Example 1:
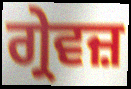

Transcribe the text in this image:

ਗ੍ਰੇਵਜ਼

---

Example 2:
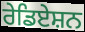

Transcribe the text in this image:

ਰੇਡਿਏਸ਼ਨ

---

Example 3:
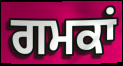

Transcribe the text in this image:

ਗਮਕਾਂ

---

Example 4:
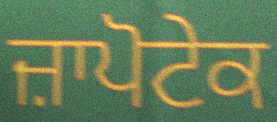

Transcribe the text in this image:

ਜ਼ਾਪੋਟੇਕ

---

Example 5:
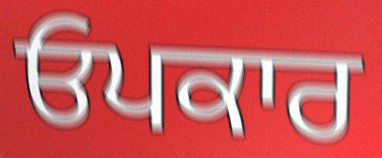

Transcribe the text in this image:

ਓਪਕਾਰ